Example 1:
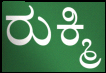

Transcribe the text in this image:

ರುಕ್ಮಿ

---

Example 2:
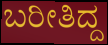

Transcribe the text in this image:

ಬರೀತಿದ್ದ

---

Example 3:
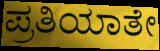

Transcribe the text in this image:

ಪ್ರತಿಯಾತೇ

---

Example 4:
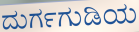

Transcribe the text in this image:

ದುರ್ಗಗುಡಿಯ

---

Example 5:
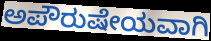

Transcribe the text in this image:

ಅಪೌರುಷೇಯವಾಗಿ